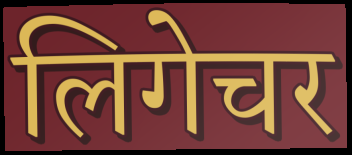
लिगेचर